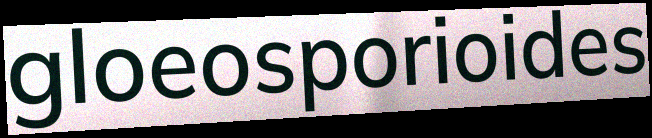
gloeosporioides